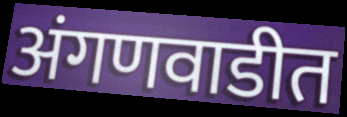
अंगणवाडीत